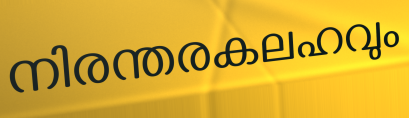
നിരന്തരകലഹവും